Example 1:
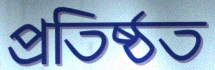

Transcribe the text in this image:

প্রতিষ্ঠত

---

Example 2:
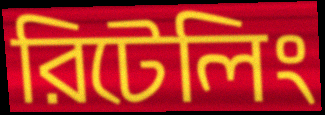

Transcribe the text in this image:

রিটেলিং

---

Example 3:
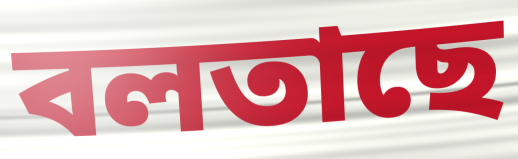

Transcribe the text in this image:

বলতাছে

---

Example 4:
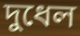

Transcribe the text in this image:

দুধেল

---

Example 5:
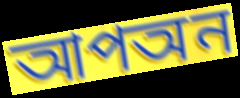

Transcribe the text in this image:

আপঅন